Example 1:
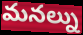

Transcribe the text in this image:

మనల్ను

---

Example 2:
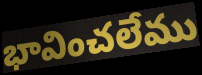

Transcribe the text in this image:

భావించలేము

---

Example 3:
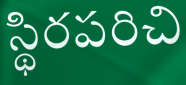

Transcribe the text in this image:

స్థిరపరిచి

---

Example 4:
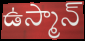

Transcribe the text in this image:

ఉస్మాన్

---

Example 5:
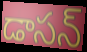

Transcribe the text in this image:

డాసన్